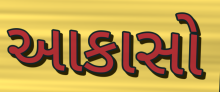
આકાસો